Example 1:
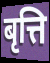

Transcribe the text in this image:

बृत्ति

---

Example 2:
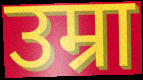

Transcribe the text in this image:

उम्रा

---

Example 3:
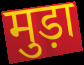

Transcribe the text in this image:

मुड़ा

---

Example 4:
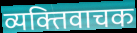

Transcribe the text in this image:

व्यक्तिवाचक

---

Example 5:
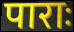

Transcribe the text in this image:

पाराः